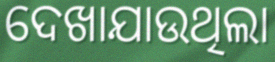
ଦେଖାଯାଉଥିଲା